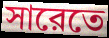
সারেতে